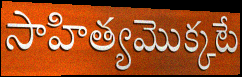
సాహిత్యమొక్కటే